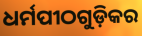
ଧର୍ମପୀଠଗୁଡ଼ିକର